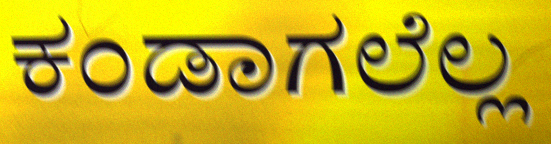
ಕಂಡಾಗಲೆಲ್ಲ